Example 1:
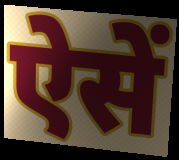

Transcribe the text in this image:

ऐसें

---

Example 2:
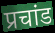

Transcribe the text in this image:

प्रचांड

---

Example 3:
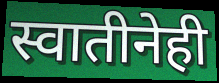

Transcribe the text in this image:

स्वातीनेही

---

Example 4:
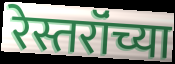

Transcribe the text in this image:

रेस्तरॉंच्या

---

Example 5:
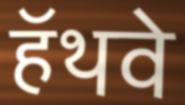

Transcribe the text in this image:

हॅथवे